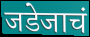
जडेजाचं